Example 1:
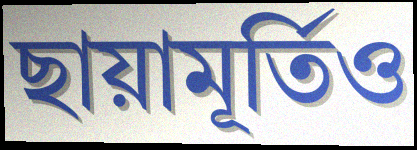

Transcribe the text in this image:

ছায়ামূর্তিও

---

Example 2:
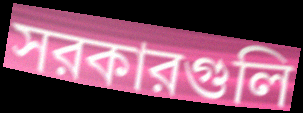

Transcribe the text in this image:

সরকারগুলি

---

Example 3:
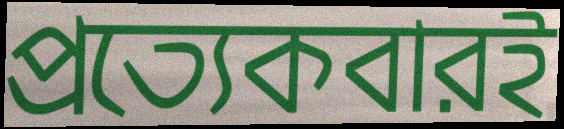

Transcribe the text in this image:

প্রত্যেকবারই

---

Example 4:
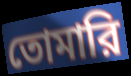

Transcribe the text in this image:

তোমারি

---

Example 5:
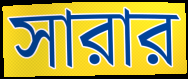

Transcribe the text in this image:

সারার